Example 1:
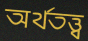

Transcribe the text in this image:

অৰ্থতত্ত্ব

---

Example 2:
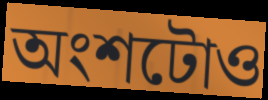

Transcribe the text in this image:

অংশটোও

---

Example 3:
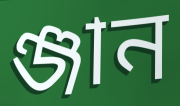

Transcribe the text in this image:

ঞ্জান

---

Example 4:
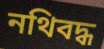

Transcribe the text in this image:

নথিবদ্ধ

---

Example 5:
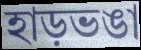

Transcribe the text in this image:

হাড়ভঙা